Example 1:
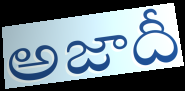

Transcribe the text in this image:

అజాదీ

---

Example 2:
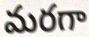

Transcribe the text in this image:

మరగా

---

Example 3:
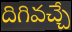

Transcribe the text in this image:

దిగివచ్చే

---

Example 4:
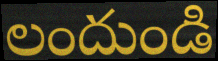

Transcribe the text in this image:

లందుండి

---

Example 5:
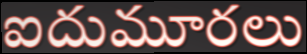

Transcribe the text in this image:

ఐదుమూరలు